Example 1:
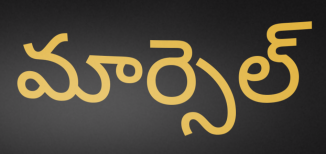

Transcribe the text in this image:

మార్సెల్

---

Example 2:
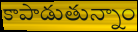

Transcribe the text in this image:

కాపాడుతున్నాం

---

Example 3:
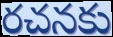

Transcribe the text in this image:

రచనకు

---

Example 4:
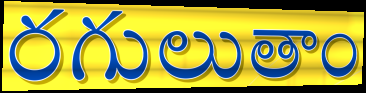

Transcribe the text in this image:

రగులుతాం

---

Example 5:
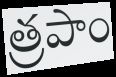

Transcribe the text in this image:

త్రపాం